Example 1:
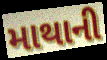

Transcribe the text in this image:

માથાની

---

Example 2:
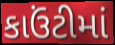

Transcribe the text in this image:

કાઉંટીમાં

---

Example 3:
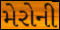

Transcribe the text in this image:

મેરોની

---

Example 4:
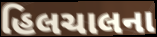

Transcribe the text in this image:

હિલચાલના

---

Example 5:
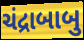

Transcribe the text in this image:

ચંદ્રાબાબુ